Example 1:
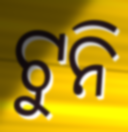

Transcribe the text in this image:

ଟୁନି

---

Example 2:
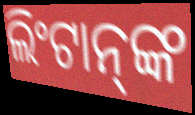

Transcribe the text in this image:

ଲିଂଟାନ୍‍ଙ୍କ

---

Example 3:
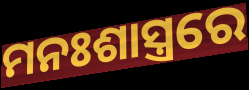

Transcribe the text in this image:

ମନଃଶାସ୍ତ୍ରରେ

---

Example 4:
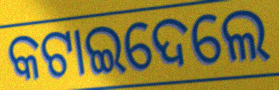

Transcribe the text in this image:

କଟାଇଦେଲେ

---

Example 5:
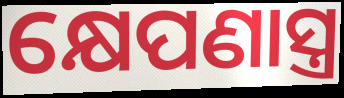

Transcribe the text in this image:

କ୍ଷେପଣାସ୍ତ୍ର